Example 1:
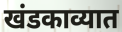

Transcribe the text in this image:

खंडकाव्यात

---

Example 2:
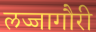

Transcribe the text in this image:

लज्जागौरी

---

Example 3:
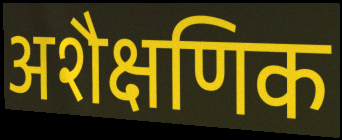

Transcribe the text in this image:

अशैक्षणिक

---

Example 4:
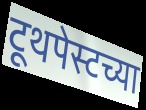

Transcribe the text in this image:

टूथपेस्टच्या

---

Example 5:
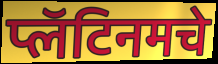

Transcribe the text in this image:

प्लॅटिनमचे